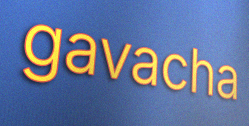
gavacha